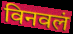
विनवलं